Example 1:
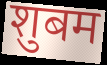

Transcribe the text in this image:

शुबम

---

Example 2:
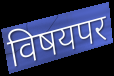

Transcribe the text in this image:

विषयपर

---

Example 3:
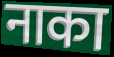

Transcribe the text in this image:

नाका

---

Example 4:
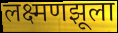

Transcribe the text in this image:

लक्ष्मणझूला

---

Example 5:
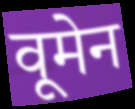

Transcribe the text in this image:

वूमेन